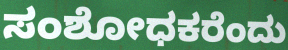
ಸಂಶೋಧಕರೆಂದು